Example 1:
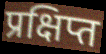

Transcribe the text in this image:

प्रक्षिप्त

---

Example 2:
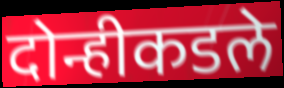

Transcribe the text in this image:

दोन्हीकडले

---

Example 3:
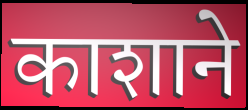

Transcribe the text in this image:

काशाने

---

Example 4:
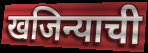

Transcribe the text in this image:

खजिन्याची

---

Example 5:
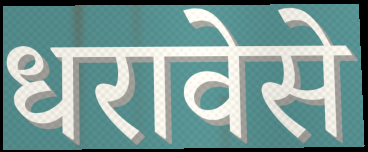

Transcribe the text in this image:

धरावेसे